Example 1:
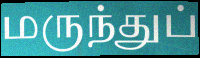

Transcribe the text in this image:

மருந்துப்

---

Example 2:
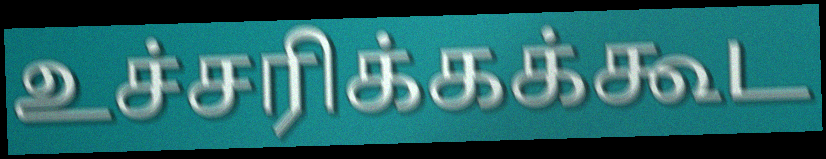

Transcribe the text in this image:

உச்சரிக்கக்கூட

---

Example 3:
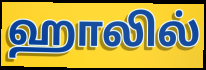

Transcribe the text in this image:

ஹாலில்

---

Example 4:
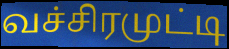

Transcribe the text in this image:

வச்சிரமுட்டி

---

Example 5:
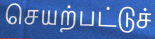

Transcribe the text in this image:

செயற்பட்டுச்